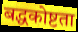
बद्धकोष्टता